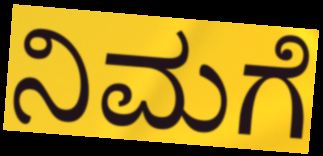
ನಿಮಗೆ